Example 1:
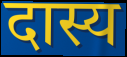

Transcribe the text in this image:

दास्य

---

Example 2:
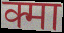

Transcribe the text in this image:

क्मा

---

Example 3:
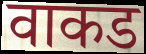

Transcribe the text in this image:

वाकड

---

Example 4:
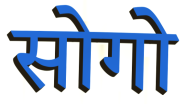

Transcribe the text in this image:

सोगो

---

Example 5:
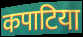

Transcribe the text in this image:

कपाटिया